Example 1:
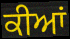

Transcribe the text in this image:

ਕੀਆਂ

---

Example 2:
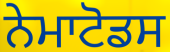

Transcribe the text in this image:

ਨੇਮਾਟੋਡਸ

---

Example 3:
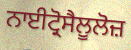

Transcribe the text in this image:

ਨਾਈਟ੍ਰੋਸੈਲੂਲੋਜ਼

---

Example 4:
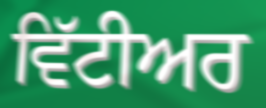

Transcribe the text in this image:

ਵਿੱਟੀਅਰ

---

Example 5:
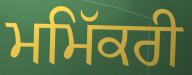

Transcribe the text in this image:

ਮਮਿੱਕਰੀ